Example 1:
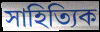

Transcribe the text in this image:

সাহিত্য়িক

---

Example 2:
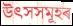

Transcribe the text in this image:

উৎসসমূহৰ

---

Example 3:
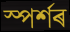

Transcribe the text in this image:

স্পৰ্শৰ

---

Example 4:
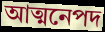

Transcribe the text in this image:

আত্মনেপদ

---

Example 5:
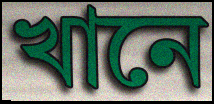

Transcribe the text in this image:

খানে